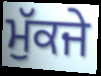
ਮੁੱਕਜੇ